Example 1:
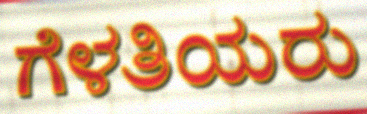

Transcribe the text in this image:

ಗೆಳತಿಯರು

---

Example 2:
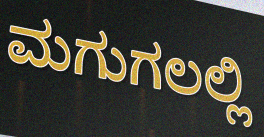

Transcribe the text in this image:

ಮಗುಗಲಲ್ಲಿ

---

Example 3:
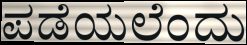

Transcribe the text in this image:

ಪಡೆಯಲೆಂದು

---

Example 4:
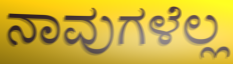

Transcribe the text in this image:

ನಾವುಗಳೆಲ್ಲ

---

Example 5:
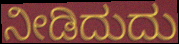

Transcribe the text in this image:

ನೀಡಿದುದು